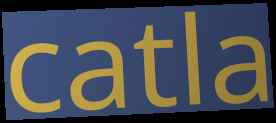
catla